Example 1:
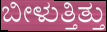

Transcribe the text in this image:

ಬೀಳುತ್ತಿತ್ತು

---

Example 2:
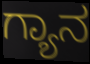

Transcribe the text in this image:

ಗ್ಯಾನ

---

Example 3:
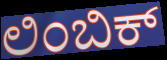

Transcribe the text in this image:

ಲಿಂಬಿಕ್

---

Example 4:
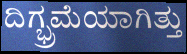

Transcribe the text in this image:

ದಿಗ್ಭ್ರಮೆಯಾಗಿತ್ತು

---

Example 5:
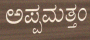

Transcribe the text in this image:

ಅಪ್ಪಮತ್ತಂ